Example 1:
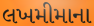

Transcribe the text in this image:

લખમીમાના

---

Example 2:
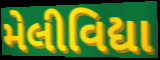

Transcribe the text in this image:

મેલીવિદ્યા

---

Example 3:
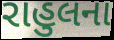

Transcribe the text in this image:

રાહુલના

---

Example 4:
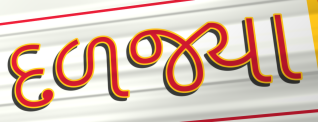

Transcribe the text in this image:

દળજ્યા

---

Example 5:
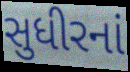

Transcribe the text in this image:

સુધીરનાં